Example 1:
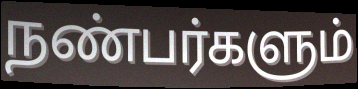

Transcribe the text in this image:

நண்பர்களும்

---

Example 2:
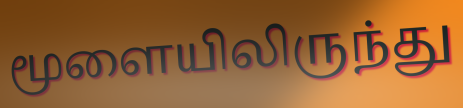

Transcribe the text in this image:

மூளையிலிருந்து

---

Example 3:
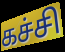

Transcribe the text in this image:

கச்சி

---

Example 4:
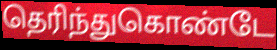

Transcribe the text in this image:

தெரிந்துகொண்டே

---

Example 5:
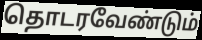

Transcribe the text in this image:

தொடரவேண்டும்